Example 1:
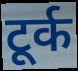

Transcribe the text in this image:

टूर्क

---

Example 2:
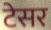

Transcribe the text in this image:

टेसर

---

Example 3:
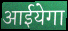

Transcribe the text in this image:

आईयेगा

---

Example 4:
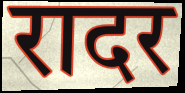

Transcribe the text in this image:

रादर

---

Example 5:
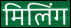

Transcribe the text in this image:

मिलिंग